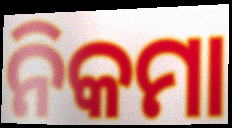
ନିକମା